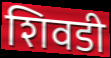
शिवडी